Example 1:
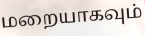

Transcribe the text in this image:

மறையாகவும்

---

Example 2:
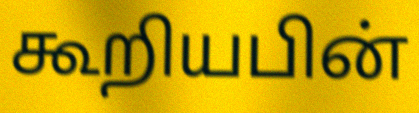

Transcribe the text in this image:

கூறியபின்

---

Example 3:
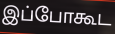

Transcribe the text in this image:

இப்போகூட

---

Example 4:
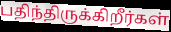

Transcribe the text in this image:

பதிந்திருக்கிறீர்கள்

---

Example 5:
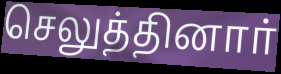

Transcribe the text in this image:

செலுத்தினார்